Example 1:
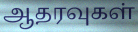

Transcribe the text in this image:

ஆதரவுகள்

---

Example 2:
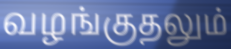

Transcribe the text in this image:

வழங்குதலும்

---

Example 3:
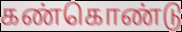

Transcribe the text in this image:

கண்கொண்டு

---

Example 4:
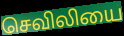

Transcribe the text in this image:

செவிலியை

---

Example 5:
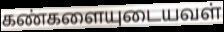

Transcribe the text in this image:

கண்களையுடையவள்